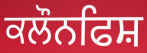
ਕਲੌਨਫਿਸ਼